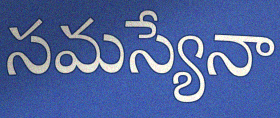
సమస్యేనా